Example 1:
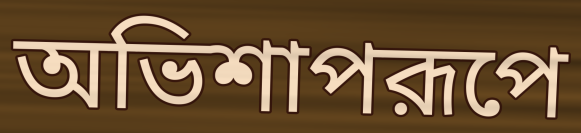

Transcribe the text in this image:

অভিশাপরূপে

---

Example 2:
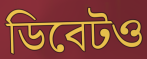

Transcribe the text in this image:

ডিবেটও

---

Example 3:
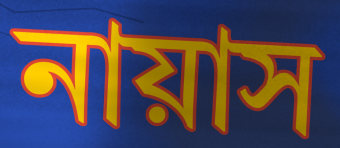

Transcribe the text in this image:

নায়াস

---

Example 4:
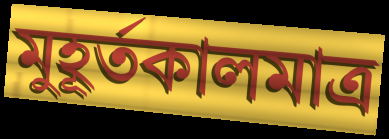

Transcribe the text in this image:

মুহূর্তকালমাত্র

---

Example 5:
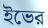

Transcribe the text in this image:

ইভের